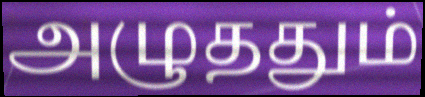
அழுததும்